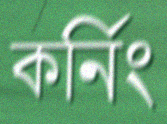
কর্নিং